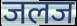
जलज